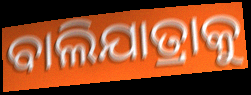
ବାଲିଯାତ୍ରାକୁ